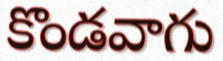
కొండవాగు